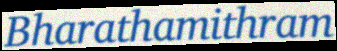
Bharathamithram